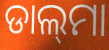
ଡାଲ୍‍ମା